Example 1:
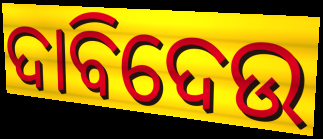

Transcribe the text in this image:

ଦାବିଦେଉ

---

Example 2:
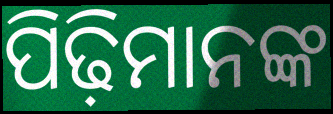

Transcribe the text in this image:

ପିଢ଼ିମାନଙ୍କ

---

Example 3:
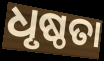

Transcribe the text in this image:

ଧୃଷ୍ଠତା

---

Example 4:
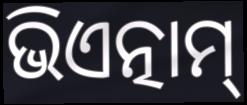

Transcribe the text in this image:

ଭିଏତ୍ନାମ୍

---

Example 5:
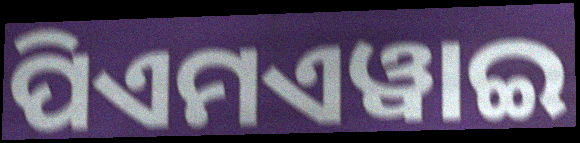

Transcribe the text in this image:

ପିଏମଏୱାଇ